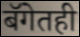
बॅगेतही